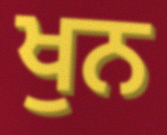
ਖੁਨ